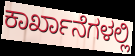
ಕಾರ್ಖಾನೆಗಳಲ್ಲಿ